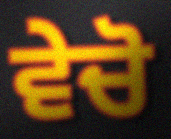
ਵੇਚੋ